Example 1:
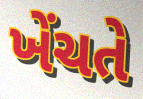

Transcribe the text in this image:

ખેંચતે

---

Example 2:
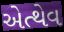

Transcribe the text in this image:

એત્થેવ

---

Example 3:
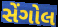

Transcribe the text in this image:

સેંગોલ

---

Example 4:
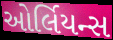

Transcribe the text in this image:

ઓર્લિયન્સ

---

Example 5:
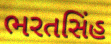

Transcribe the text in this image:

ભરતસિંહ